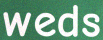
weds